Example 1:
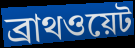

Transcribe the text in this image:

ব্রাথওয়েট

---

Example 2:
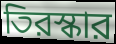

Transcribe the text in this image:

তিরস্কার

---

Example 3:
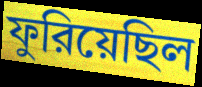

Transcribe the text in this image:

ফুরিয়েছিল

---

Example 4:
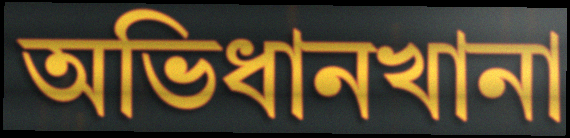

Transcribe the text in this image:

অভিধানখানা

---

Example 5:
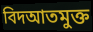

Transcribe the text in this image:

বিদআতমুক্ত